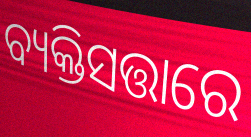
ବ୍ୟକ୍ତିସତ୍ତାରେ